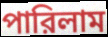
পারিলাম